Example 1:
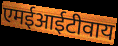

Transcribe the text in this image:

एमईआईटीवाय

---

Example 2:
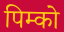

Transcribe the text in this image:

पिम्को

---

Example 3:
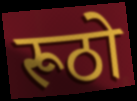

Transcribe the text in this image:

रूठो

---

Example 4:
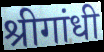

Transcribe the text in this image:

श्रीगांधी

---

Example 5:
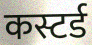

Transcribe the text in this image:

कस्टर्ड